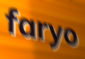
faryo